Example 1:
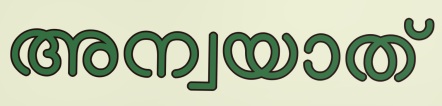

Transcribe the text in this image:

അന്വയാത്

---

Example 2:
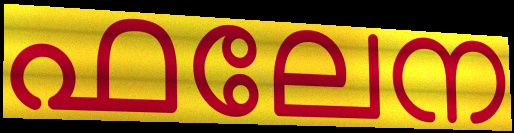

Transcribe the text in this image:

ഫലേന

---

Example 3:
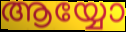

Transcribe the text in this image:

ആയ്യോ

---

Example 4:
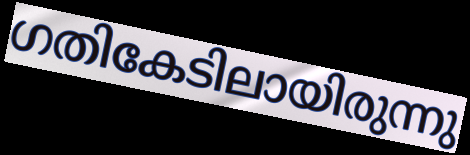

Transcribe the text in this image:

ഗതികേടിലായിരുന്നു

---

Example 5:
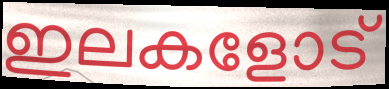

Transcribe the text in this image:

ഇലകളോട്